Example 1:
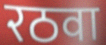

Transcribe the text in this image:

रठवा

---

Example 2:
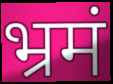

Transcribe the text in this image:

भ्रमं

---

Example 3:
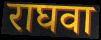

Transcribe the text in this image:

राघवा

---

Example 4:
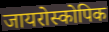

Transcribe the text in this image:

जायरोस्कोपिक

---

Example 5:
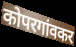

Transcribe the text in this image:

कोपरगांवकर